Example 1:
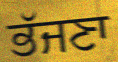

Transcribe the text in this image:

ਭੱਜਣਾ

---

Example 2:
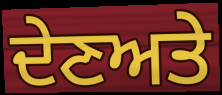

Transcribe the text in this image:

ਦੇਣਅਤੇ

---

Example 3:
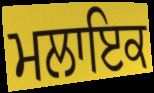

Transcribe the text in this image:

ਮਲਾਇਕ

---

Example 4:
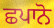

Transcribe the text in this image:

ਛਪਾਨੋ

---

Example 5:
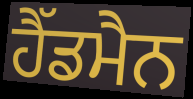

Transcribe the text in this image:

ਹੈੱਡਮੈਨ